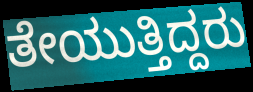
ತೇಯುತ್ತಿದ್ದರು